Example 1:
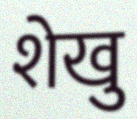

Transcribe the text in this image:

शेखु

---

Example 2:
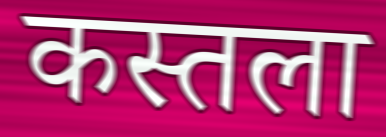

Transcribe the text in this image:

कस्तला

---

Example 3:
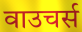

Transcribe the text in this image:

वाउचर्स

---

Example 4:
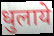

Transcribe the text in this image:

धुलाये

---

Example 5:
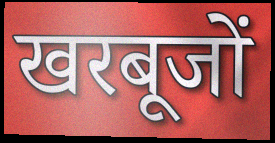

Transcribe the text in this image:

खरबूजों